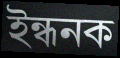
ইন্ধনক